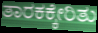
ತಾರಕಕ್ಕೇರಿತು